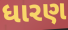
ધારણ